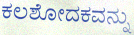
ಕಲಶೋದಕವನ್ನು